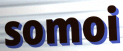
somoi